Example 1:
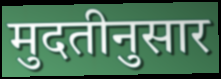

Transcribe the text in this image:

मुदतीनुसार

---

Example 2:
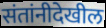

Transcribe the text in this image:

संतांनीदेखील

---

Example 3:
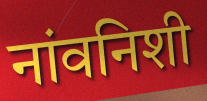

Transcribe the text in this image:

नांवनिशी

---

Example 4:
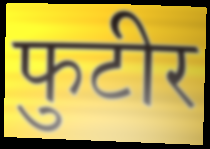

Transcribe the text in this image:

फुटीर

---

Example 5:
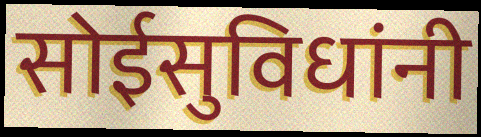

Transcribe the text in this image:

सोईसुविधांनी